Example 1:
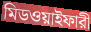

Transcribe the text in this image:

মিডওয়াইফারী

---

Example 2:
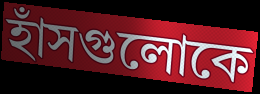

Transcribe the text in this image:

হাঁসগুলোকে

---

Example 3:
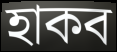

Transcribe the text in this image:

হাকব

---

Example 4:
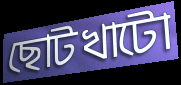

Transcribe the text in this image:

ছোটখাটো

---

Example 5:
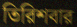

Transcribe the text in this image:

তিরিশবার